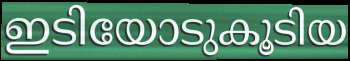
ഇടിയോടുകൂടിയ